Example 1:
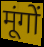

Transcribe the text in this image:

मूंगों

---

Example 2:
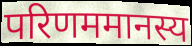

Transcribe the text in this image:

परिणममानस्य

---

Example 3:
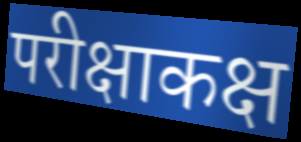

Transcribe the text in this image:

परीक्षाकक्ष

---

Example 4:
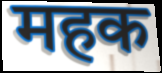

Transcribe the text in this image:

महक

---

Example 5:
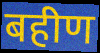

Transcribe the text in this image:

बहीण